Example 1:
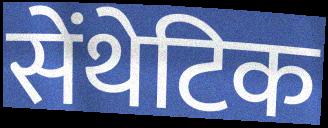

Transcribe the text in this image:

सेंथेटिक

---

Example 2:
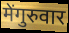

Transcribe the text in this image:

मेंगुरुवार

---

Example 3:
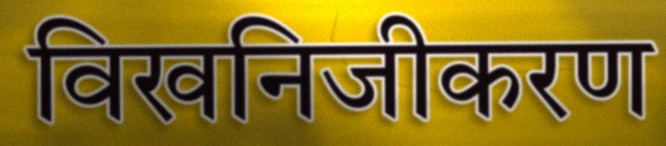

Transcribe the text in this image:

विखनिजीकरण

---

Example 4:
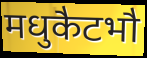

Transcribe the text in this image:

मधुकैटभौ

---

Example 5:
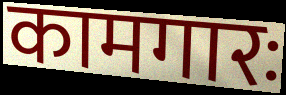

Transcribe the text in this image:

कामगारः